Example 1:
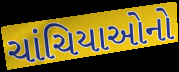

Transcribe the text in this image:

ચાંચિયાઓનો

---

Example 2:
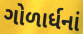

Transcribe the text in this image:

ગોળાર્ધનાં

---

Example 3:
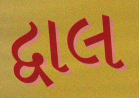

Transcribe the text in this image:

દ્વાલ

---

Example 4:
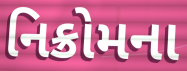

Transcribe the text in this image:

નિક્રોમના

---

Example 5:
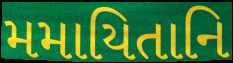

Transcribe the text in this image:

મમાયિતાનિ